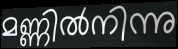
മണ്ണിൽനിന്നു